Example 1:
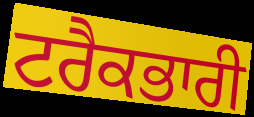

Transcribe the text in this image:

ਟਰੈਕਭਾਰੀ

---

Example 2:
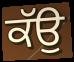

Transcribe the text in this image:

ਕੱਉ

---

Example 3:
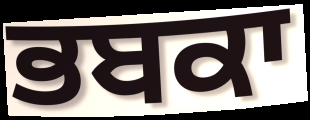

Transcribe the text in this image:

ਭਬਕਾ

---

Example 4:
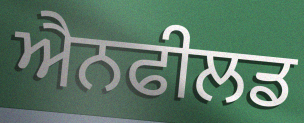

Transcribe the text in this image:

ਐਨਫੀਲਡ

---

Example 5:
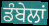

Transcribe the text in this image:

ਡੰਬੇਲਾਂ